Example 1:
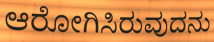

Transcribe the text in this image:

ಆರೋಗಿಸಿರುವುದನು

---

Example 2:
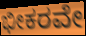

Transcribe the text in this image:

ಭೀಕರವೇ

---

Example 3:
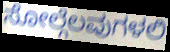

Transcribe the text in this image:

ಸೋಲ್ಗೆಲವುಗಳಲಿ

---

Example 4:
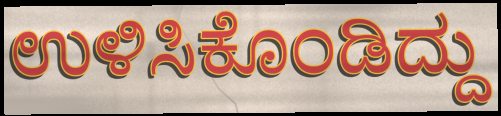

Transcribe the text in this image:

ಉಳಿಸಿಕೊಂಡಿದ್ದು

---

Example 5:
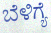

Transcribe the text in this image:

ಬೆಳಿಗ್ಯೆ